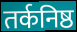
तर्कनिष्ठ